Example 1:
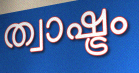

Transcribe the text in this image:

ത്വാഷ്ട്രം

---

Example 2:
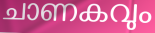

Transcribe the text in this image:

ചാണകവും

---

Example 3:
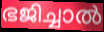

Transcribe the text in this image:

ഭജിച്ചാൽ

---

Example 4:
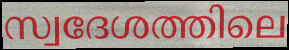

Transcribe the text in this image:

സ്വദേശത്തിലെ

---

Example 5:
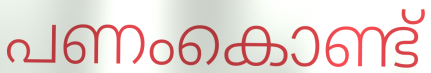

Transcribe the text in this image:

പണംകൊണ്ട്